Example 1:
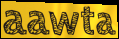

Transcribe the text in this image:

aawta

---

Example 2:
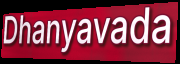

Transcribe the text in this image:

Dhanyavada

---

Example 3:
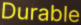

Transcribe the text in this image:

Durable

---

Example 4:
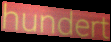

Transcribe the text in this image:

hundert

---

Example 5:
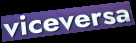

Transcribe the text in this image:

viceversa